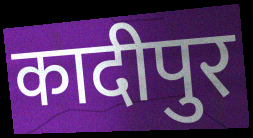
कादीपुर